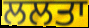
ਲਲਤਾ